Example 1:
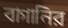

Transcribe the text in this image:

বাগানির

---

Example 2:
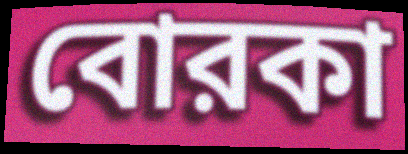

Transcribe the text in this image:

বোরকা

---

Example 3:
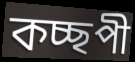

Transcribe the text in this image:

কচ্ছপী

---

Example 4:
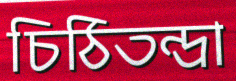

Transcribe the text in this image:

চিঠিতন্দ্রা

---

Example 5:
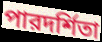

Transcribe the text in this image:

পারদর্শিতা